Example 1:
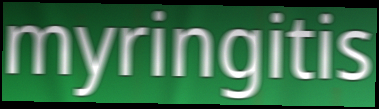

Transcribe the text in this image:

myringitis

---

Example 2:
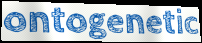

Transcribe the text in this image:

ontogenetic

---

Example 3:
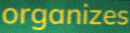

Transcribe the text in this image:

organizes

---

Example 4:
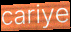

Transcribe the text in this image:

cariye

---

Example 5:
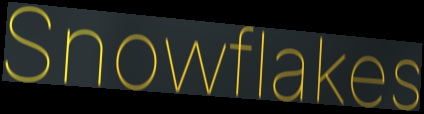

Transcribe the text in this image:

Snowflakes